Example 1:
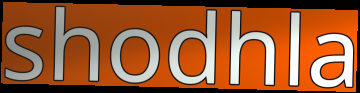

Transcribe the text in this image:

shodhla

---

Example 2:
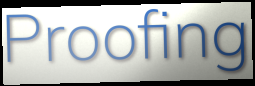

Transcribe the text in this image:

Proofing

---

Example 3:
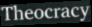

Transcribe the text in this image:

Theocracy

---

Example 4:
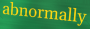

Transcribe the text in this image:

abnormally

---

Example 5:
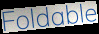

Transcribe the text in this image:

Foldable